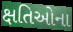
ક્ષતિઓના